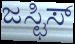
ಜಸ್ಟಿಸ್